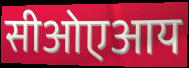
सीओएआय